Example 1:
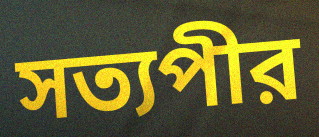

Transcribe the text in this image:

সত্যপীর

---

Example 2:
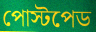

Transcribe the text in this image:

পোস্টপেড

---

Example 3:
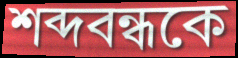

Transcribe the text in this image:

শব্দবন্ধকে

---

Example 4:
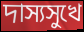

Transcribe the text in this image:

দাস্যসুখে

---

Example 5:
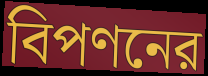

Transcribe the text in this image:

বিপণনের